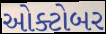
ઓક્ટોબર